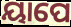
ୟାପେ